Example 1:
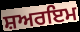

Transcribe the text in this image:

ਸ਼ਅਰਇਮ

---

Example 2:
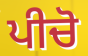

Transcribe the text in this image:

ਪੀਚੋ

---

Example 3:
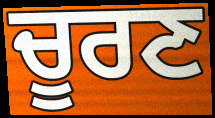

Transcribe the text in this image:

ਚੂਰਣ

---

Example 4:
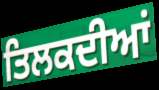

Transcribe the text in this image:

ਤਿਲਕਦੀਆਂ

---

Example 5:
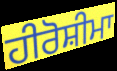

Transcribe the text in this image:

ਹੀਰੋਸ਼ੀਮਾ